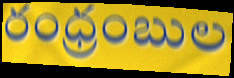
రంధ్రంబుల